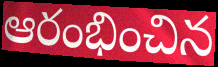
ఆరంభించిన